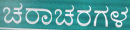
ಚರಾಚರಗಳ